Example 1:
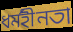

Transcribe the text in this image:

ধর্মহীনতা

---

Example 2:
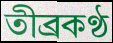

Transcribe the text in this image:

তীব্রকণ্ঠ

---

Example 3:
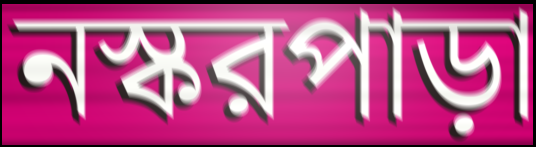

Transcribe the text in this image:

নস্করপাড়া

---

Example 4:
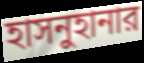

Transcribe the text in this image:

হাসনুহানার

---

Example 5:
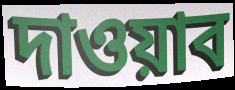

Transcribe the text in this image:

দাওয়াব